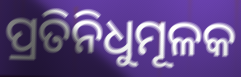
ପ୍ରତିନିଧୁମୂଳକ